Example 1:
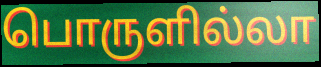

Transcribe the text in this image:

பொருளில்லா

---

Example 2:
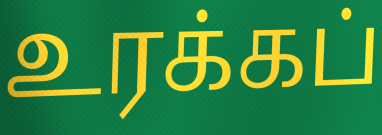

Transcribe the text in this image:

உரக்கப்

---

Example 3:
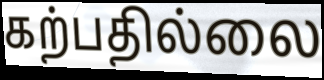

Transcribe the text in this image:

கற்பதில்லை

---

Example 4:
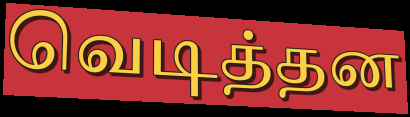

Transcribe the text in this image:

வெடித்தன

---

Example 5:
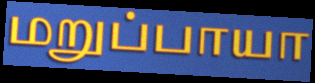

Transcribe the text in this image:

மறுப்பாயா